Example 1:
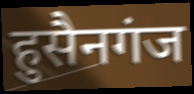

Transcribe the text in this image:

हुसैनगंज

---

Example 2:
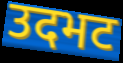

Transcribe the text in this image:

उदभट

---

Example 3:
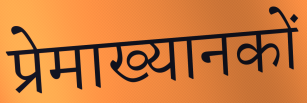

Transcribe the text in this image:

प्रेमाख्यानकों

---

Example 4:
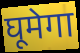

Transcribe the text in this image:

घूमेगा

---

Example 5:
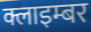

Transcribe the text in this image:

क्लाइम्बर